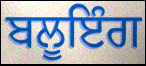
ਬਲੂਇੰਗ